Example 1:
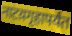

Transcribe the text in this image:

नाटय़गृहापर्यंत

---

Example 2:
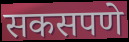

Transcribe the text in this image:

सकसपणे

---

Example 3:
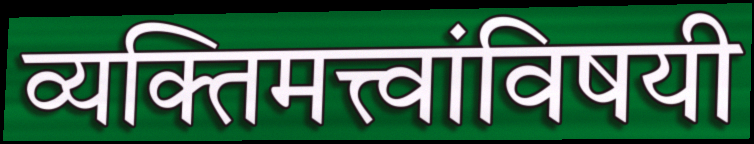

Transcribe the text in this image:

व्यक्तिमत्त्वांविषयी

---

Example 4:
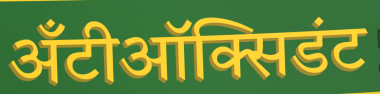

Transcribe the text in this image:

अँटीऑक्सिडंट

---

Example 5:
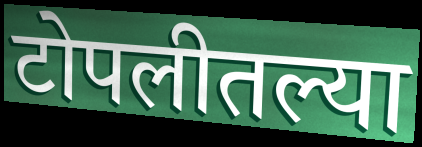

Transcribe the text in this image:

टोपलीतल्या